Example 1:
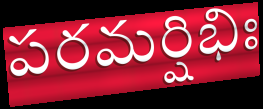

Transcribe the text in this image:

పరమర్షిభిః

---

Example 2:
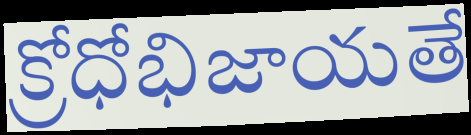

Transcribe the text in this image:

క్రోధోభిజాయతే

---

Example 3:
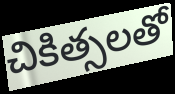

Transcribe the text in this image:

చికిత్సలతో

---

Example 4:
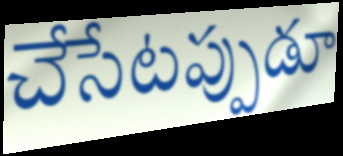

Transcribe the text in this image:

చేసేటప్పుడూ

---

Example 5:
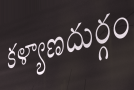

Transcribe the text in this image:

కళ్యాణదుర్గం